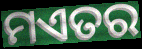
ମଏତର